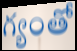
గ్యంతో